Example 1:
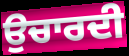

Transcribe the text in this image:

ਉਚਾਰਦੀ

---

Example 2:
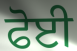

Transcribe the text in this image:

ਫੋਈ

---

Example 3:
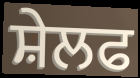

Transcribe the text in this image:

ਸ਼ੇਲਫ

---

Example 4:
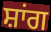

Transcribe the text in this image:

ਸ਼ਾਂਗ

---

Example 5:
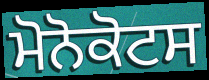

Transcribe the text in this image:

ਮੋਨੋਕੋਟਸ